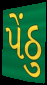
પેંઠુ